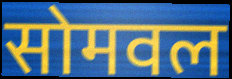
सोमवल